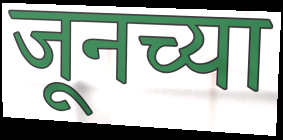
जूनच्या